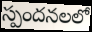
స్పందనలలో